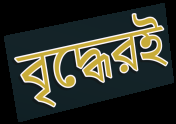
বৃদ্ধেরই